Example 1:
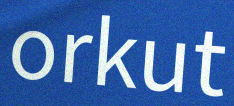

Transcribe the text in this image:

orkut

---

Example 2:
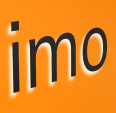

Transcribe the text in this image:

imo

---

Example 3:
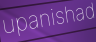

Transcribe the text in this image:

upanishad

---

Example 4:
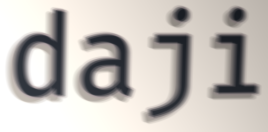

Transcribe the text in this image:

daji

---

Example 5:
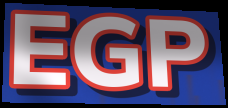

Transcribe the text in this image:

EGP